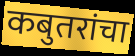
कबुतरांचा